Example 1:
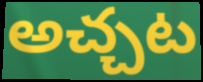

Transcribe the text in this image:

అచ్చట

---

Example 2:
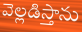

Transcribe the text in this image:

వెల్లడిస్తాను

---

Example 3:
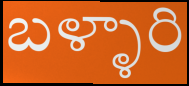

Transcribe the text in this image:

బళ్ళారి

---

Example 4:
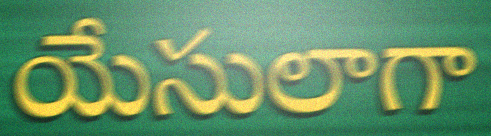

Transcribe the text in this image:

యేసులాగా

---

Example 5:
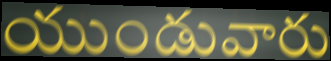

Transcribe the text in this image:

యుండువారు